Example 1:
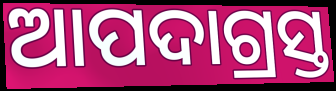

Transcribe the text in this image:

ଆପଦାଗ୍ରସ୍ତ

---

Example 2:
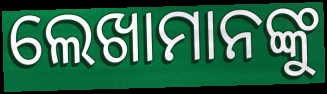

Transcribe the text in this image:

ଲେଖାମାନଙ୍କୁ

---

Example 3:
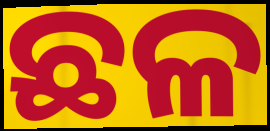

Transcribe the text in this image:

ଛଳ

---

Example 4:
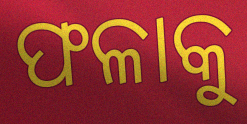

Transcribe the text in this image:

ଫଳାକୁ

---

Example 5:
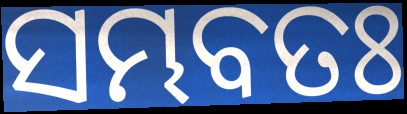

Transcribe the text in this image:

ସମ୍ଭବତଃ